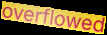
overflowed